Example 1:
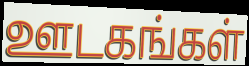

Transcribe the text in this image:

ஊடகங்கள்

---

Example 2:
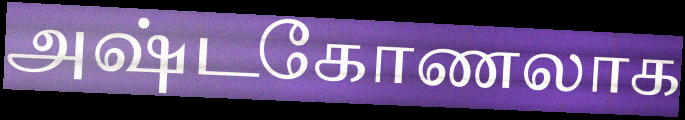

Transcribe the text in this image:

அஷ்டகோணலாக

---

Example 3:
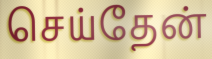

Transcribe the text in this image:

செய்தேன்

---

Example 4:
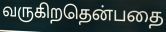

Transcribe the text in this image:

வருகிறதென்பதை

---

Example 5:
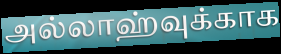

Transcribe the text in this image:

அல்லாஹ்வுக்காக